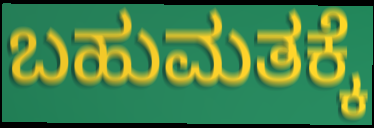
ಬಹುಮತಕ್ಕೆ